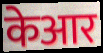
केआर